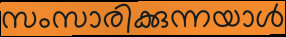
സംസാരിക്കുന്നയാൾ